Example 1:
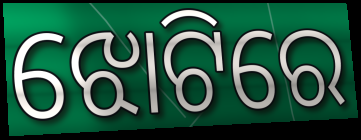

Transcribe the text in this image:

ଝୋଟିରେ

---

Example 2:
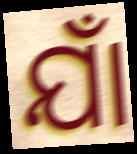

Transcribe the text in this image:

ଯାଁ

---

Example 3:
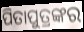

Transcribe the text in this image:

ପିତାପୁତ୍ରଙ୍କର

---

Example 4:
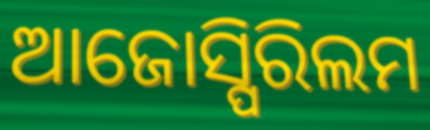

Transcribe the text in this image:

ଆଜୋସ୍ପିରିଲମ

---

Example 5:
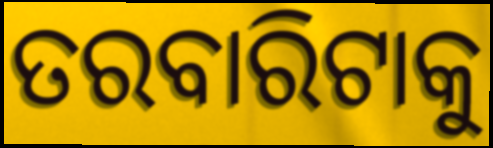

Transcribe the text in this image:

ତରବାରିଟାକୁ